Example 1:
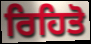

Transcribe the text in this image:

ਰਿਹਿਤੋ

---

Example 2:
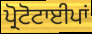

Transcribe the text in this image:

ਪ੍ਰੋਟੋਟਾਈਪਾਂ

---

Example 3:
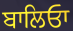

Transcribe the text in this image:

ਬਾਲਿਓਾ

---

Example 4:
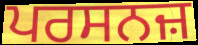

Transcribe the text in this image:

ਪਰਸਨਜ਼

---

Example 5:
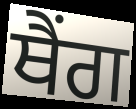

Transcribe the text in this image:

ਥੈਂਗ